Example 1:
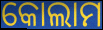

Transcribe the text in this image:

କୋଲାମ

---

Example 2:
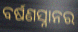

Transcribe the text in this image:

ବର୍ଷଣସ୍ନାନର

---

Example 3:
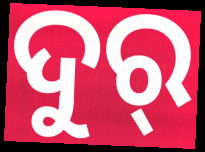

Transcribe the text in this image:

ଦୁର୍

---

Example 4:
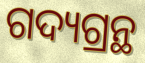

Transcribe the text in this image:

ଗଦ୍ୟଗ୍ରନ୍ଥ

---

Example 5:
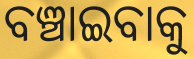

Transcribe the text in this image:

ବଞ୍ଚାଇବାକୁ